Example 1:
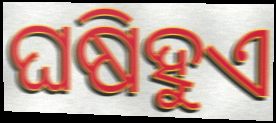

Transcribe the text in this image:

ଘଷିହୁଏ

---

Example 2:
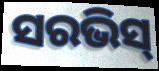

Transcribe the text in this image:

ସରଭିସ୍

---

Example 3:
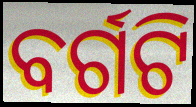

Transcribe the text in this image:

ବର୍ଗଟି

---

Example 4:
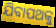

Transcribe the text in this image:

ଯିବାପଥକୁ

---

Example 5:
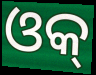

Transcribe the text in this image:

ଓକ୍